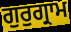
ਗੁਰੁਗ੍ਰਾਮ